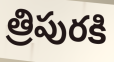
త్రిపురకి